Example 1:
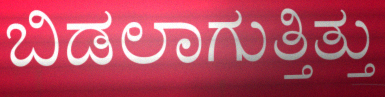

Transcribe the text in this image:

ಬಿಡಲಾಗುತ್ತಿತ್ತು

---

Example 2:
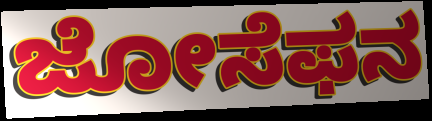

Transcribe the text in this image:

ಜೋಸೆಫನ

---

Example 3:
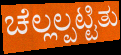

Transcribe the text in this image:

ಚೆಲ್ಲಲ್ಪಟ್ಟಿತು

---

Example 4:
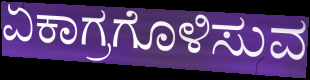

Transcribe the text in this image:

ಏಕಾಗ್ರಗೊಳಿಸುವ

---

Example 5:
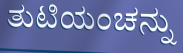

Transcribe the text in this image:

ತುಟಿಯಂಚನ್ನು